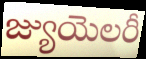
జ్యుయెలరీ